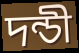
দন্ডী